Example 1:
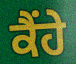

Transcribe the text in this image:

ਕੈਂਹੇ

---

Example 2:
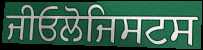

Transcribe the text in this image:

ਜੀਓਲੋਜਿਸਟਸ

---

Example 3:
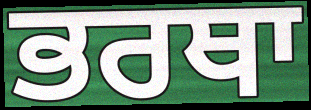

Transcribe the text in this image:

ਭਰਥਾ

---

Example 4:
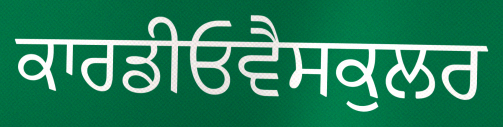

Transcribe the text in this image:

ਕਾਰਡੀਓਵੈਸਕੁਲਰ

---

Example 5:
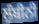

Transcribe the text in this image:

ਲੁੰਬੀਨੀ